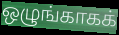
ஒழுங்காகக்